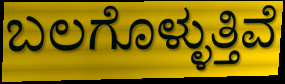
ಬಲಗೊಳ್ಳುತ್ತಿವೆ